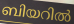
ബിയറിൽ